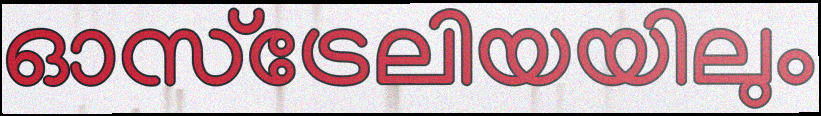
ഓസ്ട്രേലിയയിലും